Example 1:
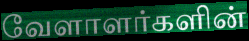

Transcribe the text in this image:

வேளாளர்களின்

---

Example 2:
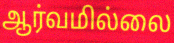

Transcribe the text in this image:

ஆர்வமில்லை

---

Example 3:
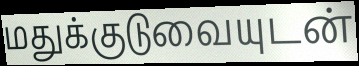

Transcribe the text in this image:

மதுக்குடுவையுடன்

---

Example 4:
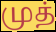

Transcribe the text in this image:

முத்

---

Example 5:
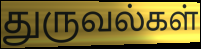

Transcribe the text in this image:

துருவல்கள்